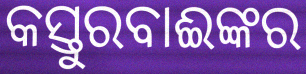
କସ୍ତୁରବାଈଙ୍କର